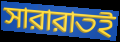
সারারাতই